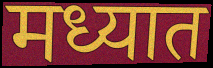
मध्यात